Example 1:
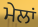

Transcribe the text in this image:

ਮੇਲਾਂ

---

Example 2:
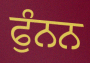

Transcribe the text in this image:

ਫੁੰਨਨ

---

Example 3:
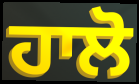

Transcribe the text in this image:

ਹਾਲੋ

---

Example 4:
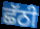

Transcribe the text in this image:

ਛੱਠੀ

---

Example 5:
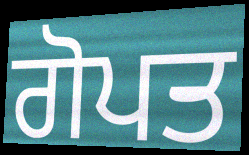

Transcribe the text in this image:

ਗੋਪਤ